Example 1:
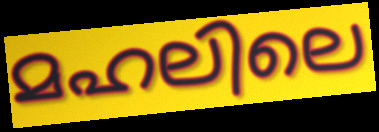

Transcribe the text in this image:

മഹലിലെ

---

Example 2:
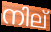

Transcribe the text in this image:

നില്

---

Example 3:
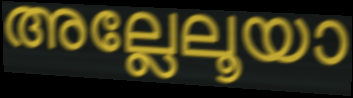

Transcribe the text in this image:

അല്ലേലൂയാ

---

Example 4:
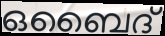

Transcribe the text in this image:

ഒബൈദ്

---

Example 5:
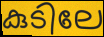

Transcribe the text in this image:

കുടിലേ